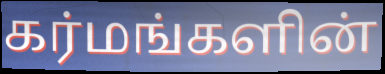
கர்மங்களின்